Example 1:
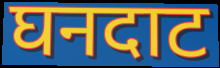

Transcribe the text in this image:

घनदाट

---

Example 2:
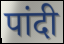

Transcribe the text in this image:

पांदी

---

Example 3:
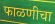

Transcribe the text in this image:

फाळणीचा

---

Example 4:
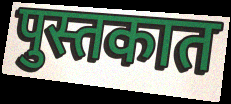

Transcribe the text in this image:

पुस्तकात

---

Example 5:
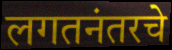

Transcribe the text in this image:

लगतनंतरचे